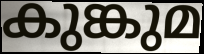
കുങ്കുമ